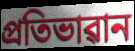
প্ৰতিভাৱান